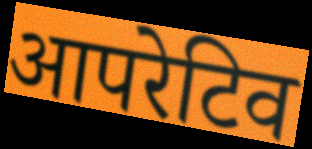
आपरेटिव